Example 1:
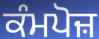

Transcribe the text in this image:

ਕੰਮਪੋਜ਼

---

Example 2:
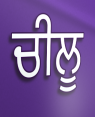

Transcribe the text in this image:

ਚੀਲੂ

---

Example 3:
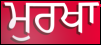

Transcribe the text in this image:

ਮੁਰਖਾ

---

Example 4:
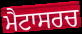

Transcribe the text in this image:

ਮੈਟਾਸਰਚ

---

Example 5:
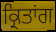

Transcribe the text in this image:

ਕ੍ਰਿਤਾਂਗ